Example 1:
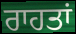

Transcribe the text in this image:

ਰਾਹਤਾਂ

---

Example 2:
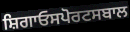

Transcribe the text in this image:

ਸ਼ਿਗਾਓਸਪੋਰਟਸਬਾਲ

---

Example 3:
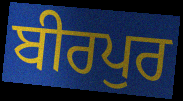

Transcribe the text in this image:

ਬੀਰਪੁਰ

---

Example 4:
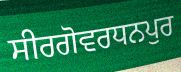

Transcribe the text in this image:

ਸੀਰਗੋਵਰਧਨਪੁਰ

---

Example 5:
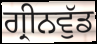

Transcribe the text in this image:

ਗ੍ਰੀਨਵੁੱਡ